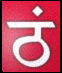
ठं